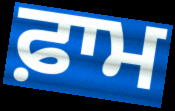
ਫ਼ਾਮ